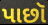
પાછૉ